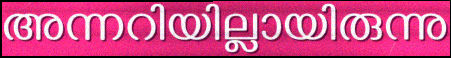
അന്നറിയില്ലായിരുന്നു